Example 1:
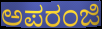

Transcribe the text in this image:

ಅಪರಂಜಿ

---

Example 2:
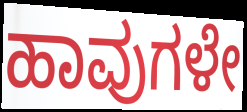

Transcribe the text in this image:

ಹಾವುಗಳೇ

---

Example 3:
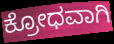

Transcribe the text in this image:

ಕ್ರೋಧವಾಗಿ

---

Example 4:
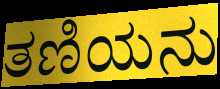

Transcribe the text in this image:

ತಣಿಯನು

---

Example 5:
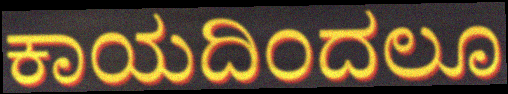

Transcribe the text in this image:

ಕಾಯದಿಂದಲೂ